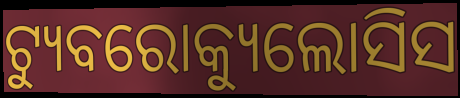
ଟ୍ୟୁବରୋକ୍ୟୁଲୋସିସ